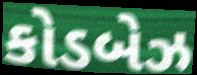
કોડબેઝ